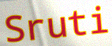
Sruti